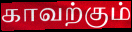
காவற்கும்